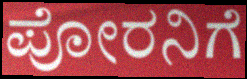
ಪೋರನಿಗೆ